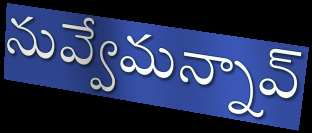
నువ్వేమన్నావ్